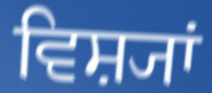
ਵਿਸ਼੍ਯਾਂ